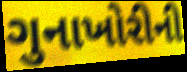
ગુનાખોરીની